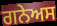
ਗਨੇਅਸ